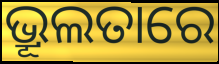
ଭ୍ରୂଲତାରେ